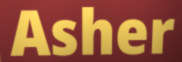
Asher